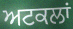
ਅਟਕਲਾਂ